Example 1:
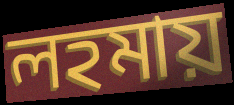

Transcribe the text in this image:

লহমায়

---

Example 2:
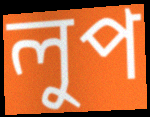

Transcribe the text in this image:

লুপ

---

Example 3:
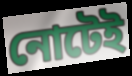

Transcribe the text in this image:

নোটেই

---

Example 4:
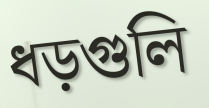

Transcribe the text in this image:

ধড়গুলি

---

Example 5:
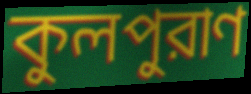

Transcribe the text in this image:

কুলপুরাণ